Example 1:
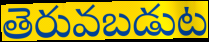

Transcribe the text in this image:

తెరువబడుట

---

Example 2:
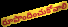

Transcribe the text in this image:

రూపొందించుకోవాలి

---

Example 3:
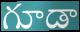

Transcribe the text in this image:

గూడా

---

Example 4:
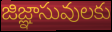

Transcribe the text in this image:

జిజ్ఞాసువులకు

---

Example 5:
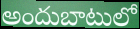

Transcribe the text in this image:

అందుబాటులో